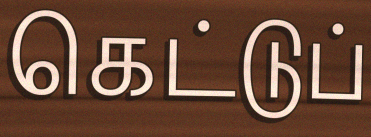
கெட்டுப்